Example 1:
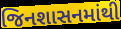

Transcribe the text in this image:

જિનશાસનમાંથી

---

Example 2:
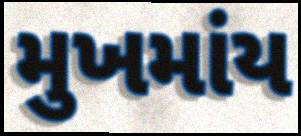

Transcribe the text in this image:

મુખમાંય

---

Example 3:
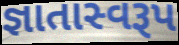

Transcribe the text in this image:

જ્ઞાતાસ્વરૂપ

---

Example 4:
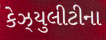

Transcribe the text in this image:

કેઝ્યુલીટીના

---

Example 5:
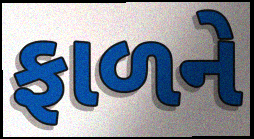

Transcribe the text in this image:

ફાળને